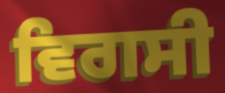
ਵਿਗਸੀ